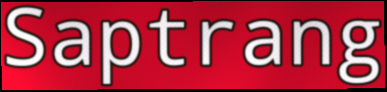
Saptrang